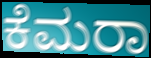
ಕೆಮರಾ